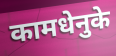
कामधेनुके